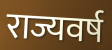
राज्यवर्ष